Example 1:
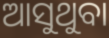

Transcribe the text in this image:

ଆସୁଥୁବା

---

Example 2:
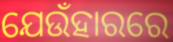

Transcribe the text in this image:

ଯେଉଁହାରରେ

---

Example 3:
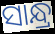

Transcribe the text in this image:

ସାନ୍ଧ୍ର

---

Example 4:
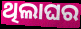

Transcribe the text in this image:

ଥିଲାଘର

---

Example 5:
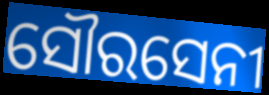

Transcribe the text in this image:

ସୌରସେନୀ